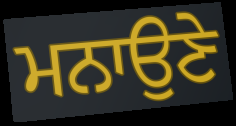
ਮਨਾਉਣੇ